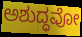
ಅಶುದ್ಧವೋ